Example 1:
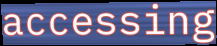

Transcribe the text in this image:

accessing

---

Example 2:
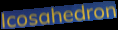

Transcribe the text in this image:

Icosahedron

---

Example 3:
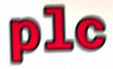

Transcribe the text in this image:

plc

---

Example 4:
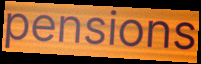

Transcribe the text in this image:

pensions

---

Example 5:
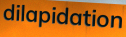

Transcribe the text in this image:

dilapidation